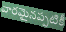
వారమైనప్పటికీ